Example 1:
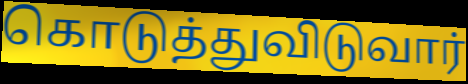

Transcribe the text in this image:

கொடுத்துவிடுவார்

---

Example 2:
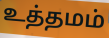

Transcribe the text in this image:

உத்தமம்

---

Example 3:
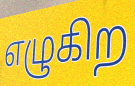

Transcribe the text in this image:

எழுகிற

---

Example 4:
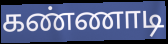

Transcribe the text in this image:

கண்ணாடி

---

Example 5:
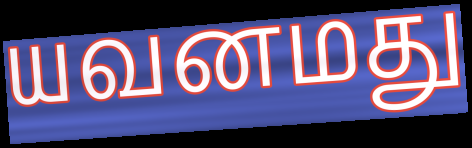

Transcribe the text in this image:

யவனமது